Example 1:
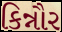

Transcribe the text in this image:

કિન્નૌર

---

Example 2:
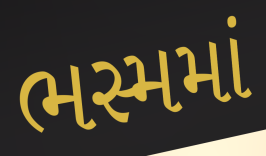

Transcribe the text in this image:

ભસ્મમાં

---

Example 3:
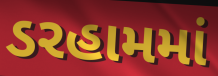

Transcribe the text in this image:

ડરહામમાં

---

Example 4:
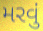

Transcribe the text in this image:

મરવું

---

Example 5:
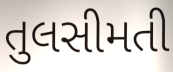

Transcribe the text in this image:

તુલસીમતી